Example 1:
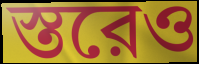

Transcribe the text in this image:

স্তরেও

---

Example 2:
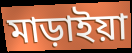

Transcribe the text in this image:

মাড়াইয়া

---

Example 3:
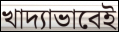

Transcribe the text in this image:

খাদ্যাভাবেই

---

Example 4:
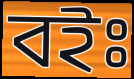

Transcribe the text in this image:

বইঃ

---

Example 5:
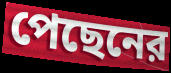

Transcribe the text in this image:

পেছেনের